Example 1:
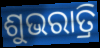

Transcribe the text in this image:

ଶୁଭରାତ୍ରି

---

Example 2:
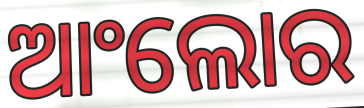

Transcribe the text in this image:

ଆଂଲୋର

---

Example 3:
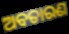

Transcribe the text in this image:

ଅବତାରଣ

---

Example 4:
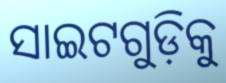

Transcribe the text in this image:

ସାଇଟଗୁଡ଼ିକୁ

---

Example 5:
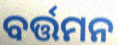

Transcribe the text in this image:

ବର୍ତ୍ତମନ